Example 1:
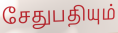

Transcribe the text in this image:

சேதுபதியும்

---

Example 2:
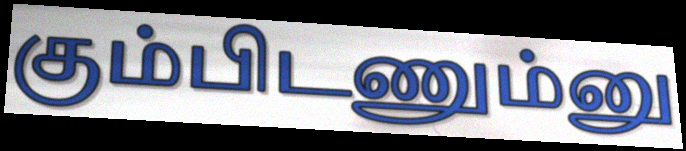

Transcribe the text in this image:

கும்பிடணும்னு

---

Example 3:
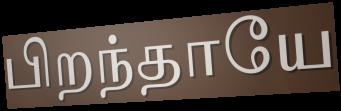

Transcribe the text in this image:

பிறந்தாயே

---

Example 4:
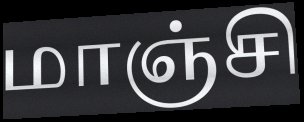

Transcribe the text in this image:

மாஞ்சி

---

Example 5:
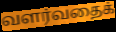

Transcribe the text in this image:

வளர்வதைக்